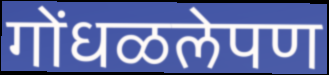
गोंधळलेपण